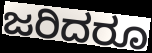
ಜರಿದರೂ